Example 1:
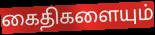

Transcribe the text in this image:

கைதிகளையும்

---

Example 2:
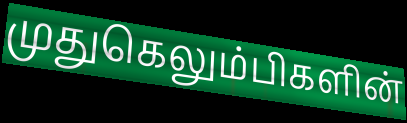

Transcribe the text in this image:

முதுகெலும்பிகளின்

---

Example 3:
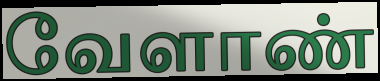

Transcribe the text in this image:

வேளாண்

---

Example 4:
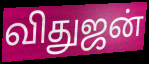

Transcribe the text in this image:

விதுஜன்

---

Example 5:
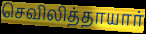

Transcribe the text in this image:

செவிலித்தாயார்